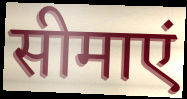
सीमाएं